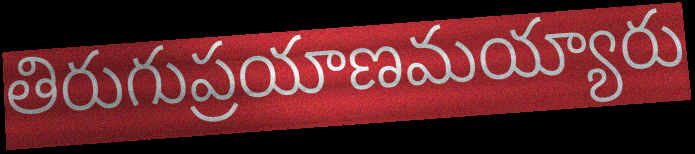
తిరుగుప్రయాణమయ్యారు